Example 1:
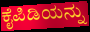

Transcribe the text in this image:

ಕೈಪಿಡಿಯನ್ನು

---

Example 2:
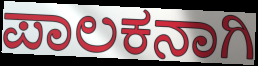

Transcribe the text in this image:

ಪಾಲಕನಾಗಿ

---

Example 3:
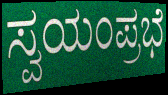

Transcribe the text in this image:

ಸ್ವಯಂಪ್ರಭೆ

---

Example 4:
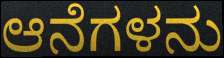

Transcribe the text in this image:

ಆನೆಗಳನು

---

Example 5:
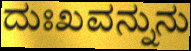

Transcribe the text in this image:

ದುಃಖವನ್ನುನು